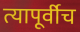
त्यापूर्वीच